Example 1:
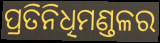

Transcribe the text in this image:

ପ୍ରତିନିଧିମଣ୍ଡଳର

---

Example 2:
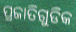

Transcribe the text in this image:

ପ୍ରଜାତିଗୁଡିକ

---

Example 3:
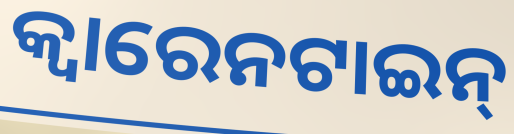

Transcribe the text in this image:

କ୍ୱାରେନଟାଇନ୍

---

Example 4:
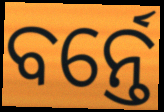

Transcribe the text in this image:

ବର୍ନ୍ତେ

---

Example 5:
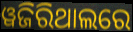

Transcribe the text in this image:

ୱଜିରିଥାଲରେ